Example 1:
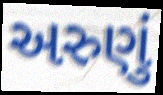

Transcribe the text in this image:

અરુણું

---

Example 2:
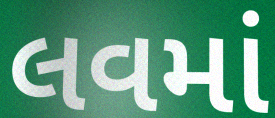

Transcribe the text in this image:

લવમાં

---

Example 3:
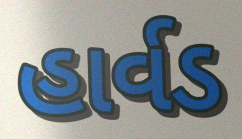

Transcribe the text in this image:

હાર્વડ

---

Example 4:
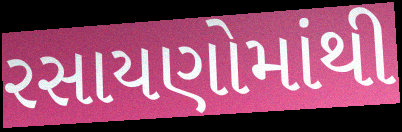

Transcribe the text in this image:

રસાયણોમાંથી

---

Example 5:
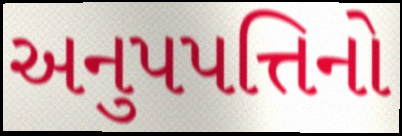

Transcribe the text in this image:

અનુપપત્તિનો